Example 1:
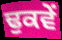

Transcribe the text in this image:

ਢੁਕਵੇਂ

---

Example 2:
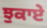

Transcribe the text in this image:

ਝੁਕਾਏ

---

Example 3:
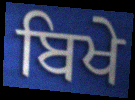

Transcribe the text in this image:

ਬਿਖੇ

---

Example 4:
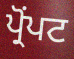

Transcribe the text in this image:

ਪ੍ਰੋਂਪਟ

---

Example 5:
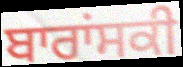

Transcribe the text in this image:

ਬਾਰਾਂਸਕੀ